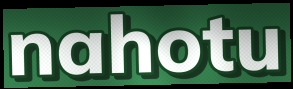
nahotu